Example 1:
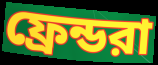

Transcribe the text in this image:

ফ্রেন্ডরা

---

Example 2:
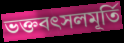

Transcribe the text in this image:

ভক্তবৎসলমূর্তি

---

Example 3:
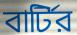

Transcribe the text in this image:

বার্টির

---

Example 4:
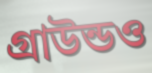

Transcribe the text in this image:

গ্রাউন্ডও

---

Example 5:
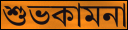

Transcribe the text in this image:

শুভকামনা